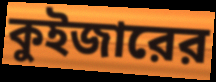
কুইজারের